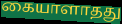
கையாளாதது